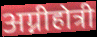
अग्नीहोत्री